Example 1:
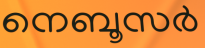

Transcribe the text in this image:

നെബൂസർ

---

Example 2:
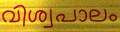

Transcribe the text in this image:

വിശ്വപാലം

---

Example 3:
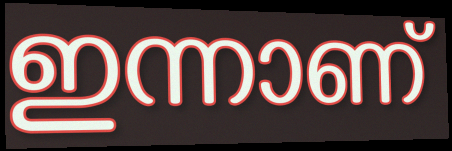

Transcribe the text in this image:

ഇന്നാണ്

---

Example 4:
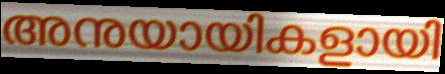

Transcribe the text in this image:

അനുയായികളായി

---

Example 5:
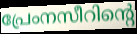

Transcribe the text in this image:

പ്രേംനസീറിന്റെ